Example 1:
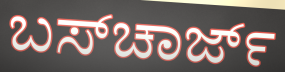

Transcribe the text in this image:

ಬಸ್‌ಚಾರ್ಜ್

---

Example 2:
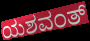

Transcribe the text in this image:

ಯಶವಂತ್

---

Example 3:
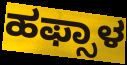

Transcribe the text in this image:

ಹಫ್ಸಾಳ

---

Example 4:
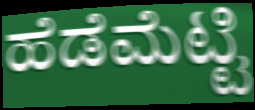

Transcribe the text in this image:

ಹೆಡೆಮೆಟ್ಟಿ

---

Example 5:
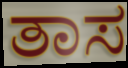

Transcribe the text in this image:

ತಾಸ